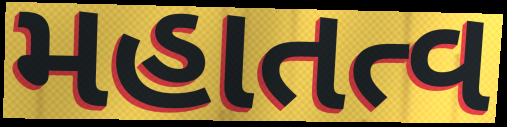
મહાતત્વ